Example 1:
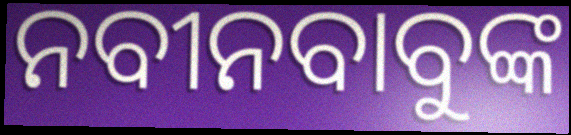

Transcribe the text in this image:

ନବୀନବାବୁଙ୍କ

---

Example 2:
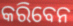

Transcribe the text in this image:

କରିବେନ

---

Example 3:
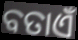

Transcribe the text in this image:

ବତାଏଁ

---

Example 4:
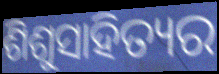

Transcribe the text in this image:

ଶିଶୁସାହିତ୍ୟର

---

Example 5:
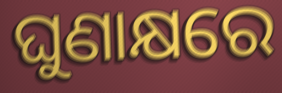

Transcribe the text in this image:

ଘୁଣାକ୍ଷରେ